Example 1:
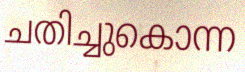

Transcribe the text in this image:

ചതിച്ചുകൊന്ന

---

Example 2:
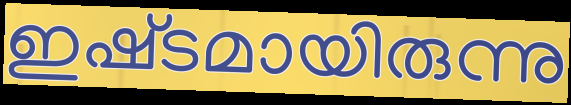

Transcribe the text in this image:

ഇഷ്‌ടമായിരുന്നു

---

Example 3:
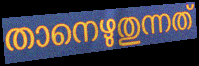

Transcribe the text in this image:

താനെഴുതുന്നത്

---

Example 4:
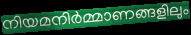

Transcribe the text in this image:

നിയമനിർമ്മാണങ്ങളിലും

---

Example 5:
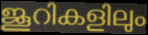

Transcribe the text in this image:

ജൂറികളിലും